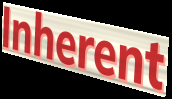
Inherent